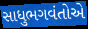
સાધુભગવંતોએ